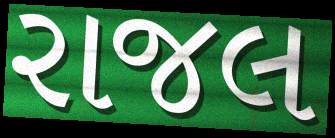
રાજલ